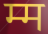
म्म